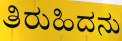
ತಿರುಹಿದನು